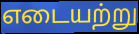
எடையற்று